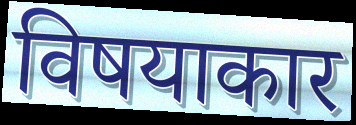
विषयाकार